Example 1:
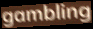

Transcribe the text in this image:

gambling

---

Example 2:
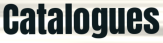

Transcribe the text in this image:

Catalogues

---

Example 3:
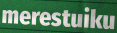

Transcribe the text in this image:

merestuiku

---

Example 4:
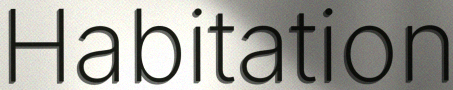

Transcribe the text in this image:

Habitation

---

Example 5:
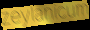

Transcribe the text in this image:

zeylanicum